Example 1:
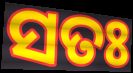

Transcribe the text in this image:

ସତଃ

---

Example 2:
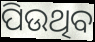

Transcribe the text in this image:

ପିଉଥିବ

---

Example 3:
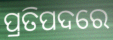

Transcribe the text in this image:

ପ୍ରତିପଦରେ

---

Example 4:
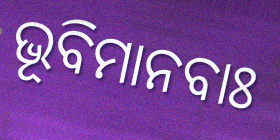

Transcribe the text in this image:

ଭୂବିମାନବାଃ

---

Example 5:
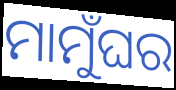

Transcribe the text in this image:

ମାମୁଁଘର